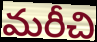
మరీచి